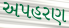
અપહરણ